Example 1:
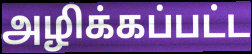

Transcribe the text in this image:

அழிக்கப்பட்ட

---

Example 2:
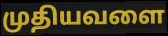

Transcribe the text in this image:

முதியவளை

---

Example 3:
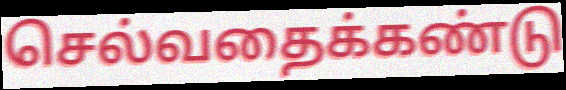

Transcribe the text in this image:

செல்வதைக்கண்டு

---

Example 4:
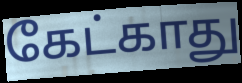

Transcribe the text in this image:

கேட்காது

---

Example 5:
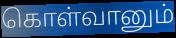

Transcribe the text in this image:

கொள்வானும்